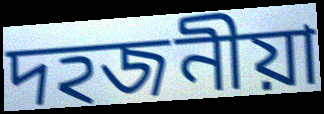
দহজনীয়া